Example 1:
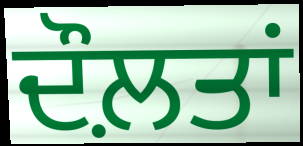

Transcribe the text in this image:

ਦੌਲ਼ਤਾਂ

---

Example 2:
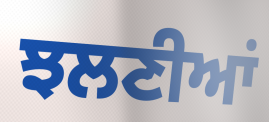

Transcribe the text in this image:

ਝਲਣੀਆਂ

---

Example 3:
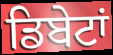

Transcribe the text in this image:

ਡਿਬੇਟਾਂ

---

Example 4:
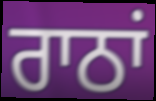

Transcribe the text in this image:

ਰਾਠਾਂ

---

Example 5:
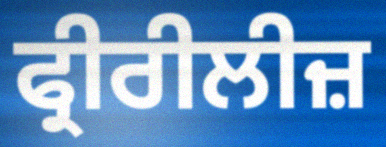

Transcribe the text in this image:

ਫ੍ਰੀਰੀਲੀਜ਼